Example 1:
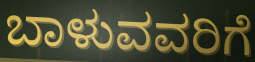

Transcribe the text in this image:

ಬಾಳುವವರಿಗೆ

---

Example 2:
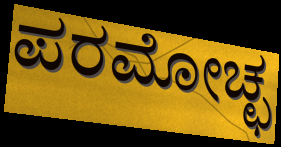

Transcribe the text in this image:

ಪರಮೋಚ್ಛ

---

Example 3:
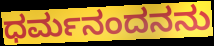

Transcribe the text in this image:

ಧರ್ಮನಂದನನು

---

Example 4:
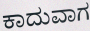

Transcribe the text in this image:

ಕಾದುವಾಗ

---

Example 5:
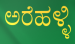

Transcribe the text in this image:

ಅರೆಹಳ್ಳಿ